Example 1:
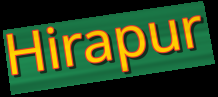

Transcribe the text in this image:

Hirapur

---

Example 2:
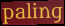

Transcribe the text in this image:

paling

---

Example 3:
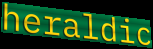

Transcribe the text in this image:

heraldic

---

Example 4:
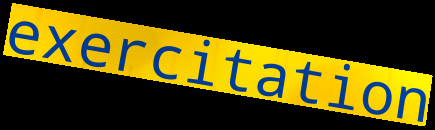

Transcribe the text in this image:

exercitation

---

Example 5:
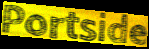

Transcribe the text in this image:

Portside